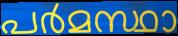
പർമസ്ഥാ